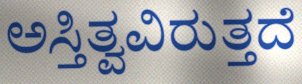
ಅಸ್ತಿತ್ವವಿರುತ್ತದೆ